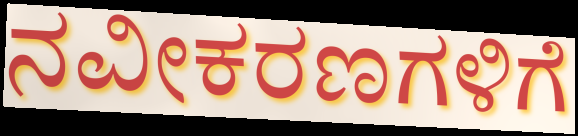
ನವೀಕರಣಗಳಿಗೆ